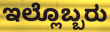
ಇಲ್ಲೊಬ್ಬರು